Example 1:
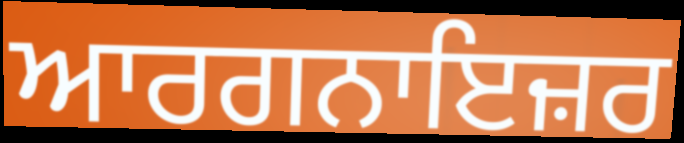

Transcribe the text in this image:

ਆਰਗਨਾਇਜ਼ਰ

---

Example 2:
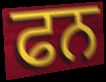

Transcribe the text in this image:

ਫਨ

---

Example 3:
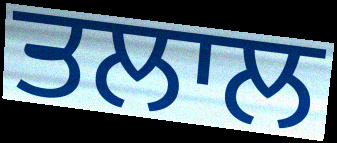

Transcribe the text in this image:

ਤਲਾਲ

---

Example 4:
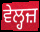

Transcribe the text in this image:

ਵੇਲ੍ਹਜ਼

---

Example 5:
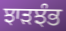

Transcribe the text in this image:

ਝਾੜਝੰਭ